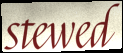
stewed